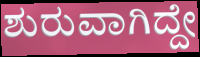
ಶುರುವಾಗಿದ್ದೇ